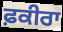
ਫ਼ਕੀਰਾ